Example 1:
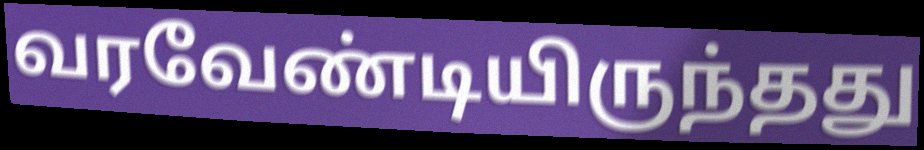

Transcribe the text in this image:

வரவேண்டியிருந்தது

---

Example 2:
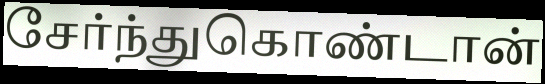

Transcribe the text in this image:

சேர்ந்துகொண்டான்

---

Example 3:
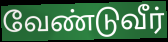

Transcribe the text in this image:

வேண்டுவீர்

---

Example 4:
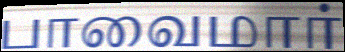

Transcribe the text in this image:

பாவைமார்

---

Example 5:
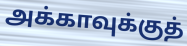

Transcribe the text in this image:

அக்காவுக்குத்